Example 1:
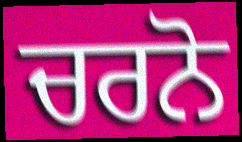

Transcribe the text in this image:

ਚਰਨੋ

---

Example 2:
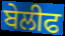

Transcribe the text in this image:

ਬੇਲੀਫ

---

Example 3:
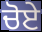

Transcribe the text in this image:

ਚੋਏ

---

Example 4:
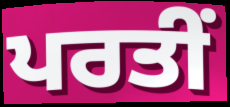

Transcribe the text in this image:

ਪਰਤੀਂ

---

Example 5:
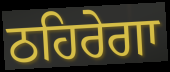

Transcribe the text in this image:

ਠਹਿਰੇਗਾ